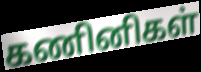
கணினிகள்